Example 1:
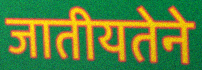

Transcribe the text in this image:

जातीयतेने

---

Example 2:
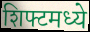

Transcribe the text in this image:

शिफ्टमध्ये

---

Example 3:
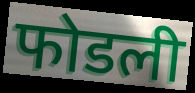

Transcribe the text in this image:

फोडली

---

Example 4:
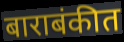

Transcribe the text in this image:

बाराबंकीत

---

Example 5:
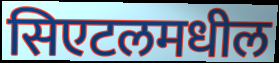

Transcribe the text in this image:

सिएटलमधील